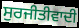
ਸੁਰਜੀਤੀਵਾਦੀ